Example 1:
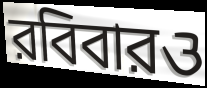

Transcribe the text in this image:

রবিবারও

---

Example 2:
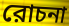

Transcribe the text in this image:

রোচনা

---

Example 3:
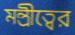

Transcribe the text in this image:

মন্ত্রীত্বের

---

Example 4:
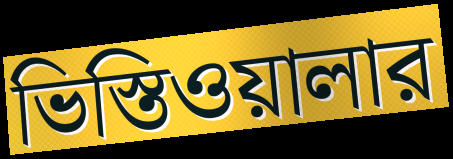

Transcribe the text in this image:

ভিস্তিওয়ালার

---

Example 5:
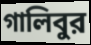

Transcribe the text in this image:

গালিবুর